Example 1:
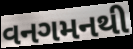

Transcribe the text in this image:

વનગમનથી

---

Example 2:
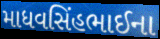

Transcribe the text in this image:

માધવસિંહભાઈના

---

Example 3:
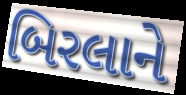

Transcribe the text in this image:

બિરલાને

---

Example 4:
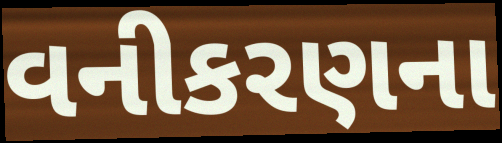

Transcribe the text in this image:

વનીકરણના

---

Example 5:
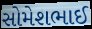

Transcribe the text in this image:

સોમેશભાઈ